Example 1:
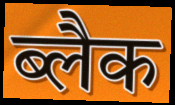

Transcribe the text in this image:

ब्‍लैक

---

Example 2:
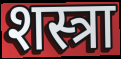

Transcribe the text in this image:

शस्त्रा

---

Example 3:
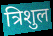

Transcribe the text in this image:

त्रिशुल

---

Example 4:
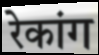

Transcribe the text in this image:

रेकांग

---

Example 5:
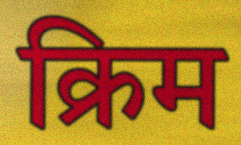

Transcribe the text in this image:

क्रिम